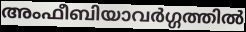
അംഫീബിയാവർഗ്ഗത്തിൽ